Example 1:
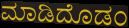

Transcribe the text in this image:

ಮಾಡಿದೊಡಂ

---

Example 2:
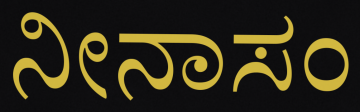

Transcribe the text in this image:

ನೀನಾಸಂ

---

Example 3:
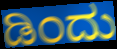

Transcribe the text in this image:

ಡಿಂದು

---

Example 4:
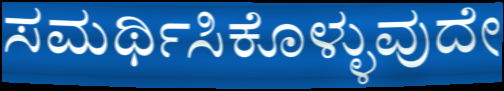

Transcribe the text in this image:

ಸಮರ್ಥಿಸಿಕೊಳ್ಳುವುದೇ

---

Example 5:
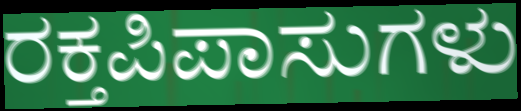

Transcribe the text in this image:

ರಕ್ತಪಿಪಾಸುಗಳು